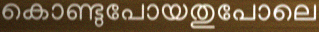
കൊണ്ടുപോയതുപോലെ